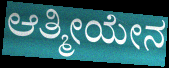
ಆತ್ಮೀಯೇನ